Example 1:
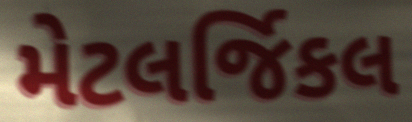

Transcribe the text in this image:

મેટલર્જિકલ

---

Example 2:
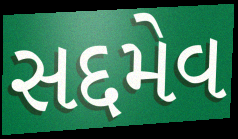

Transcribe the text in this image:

સદ્દમેવ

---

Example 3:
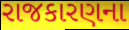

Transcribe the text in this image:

રાજકારણના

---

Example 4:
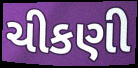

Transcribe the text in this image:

ચીકણી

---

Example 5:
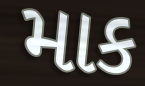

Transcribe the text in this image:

માક